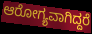
ಆರೋಗ್ಯವಾಗಿದ್ದರೆ